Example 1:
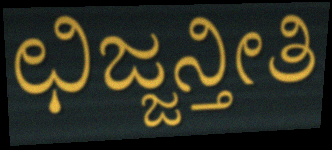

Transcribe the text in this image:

ಛಿಜ್ಜನ್ತೀತಿ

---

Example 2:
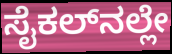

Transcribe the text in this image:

ಸೈಕಲ್‌ನಲ್ಲೇ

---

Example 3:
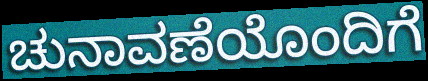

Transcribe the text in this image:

ಚುನಾವಣೆಯೊಂದಿಗೆ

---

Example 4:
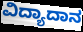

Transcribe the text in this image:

ವಿದ್ಯಾದಾನ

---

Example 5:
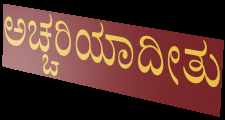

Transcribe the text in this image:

ಅಚ್ಚರಿಯಾದೀತು